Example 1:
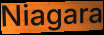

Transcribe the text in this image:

Niagara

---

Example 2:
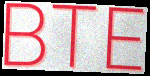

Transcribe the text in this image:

BTE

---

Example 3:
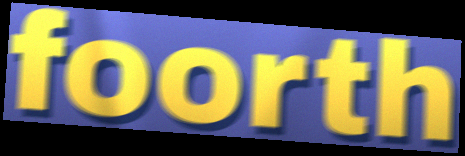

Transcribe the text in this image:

foorth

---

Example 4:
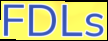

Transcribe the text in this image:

FDLs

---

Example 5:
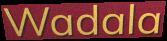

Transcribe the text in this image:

Wadala